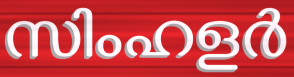
സിംഹളർ